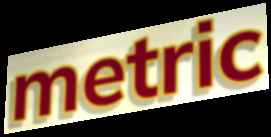
metric